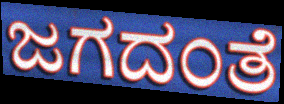
ಜಗದಂತೆ